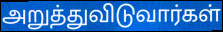
அறுத்துவிடுவார்கள்